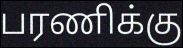
பரணிக்கு